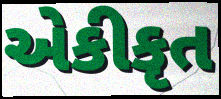
એકીકૃત